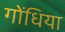
गोंधिया